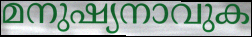
മനുഷ്യനാവുക